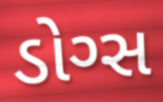
ડોગ્સ